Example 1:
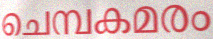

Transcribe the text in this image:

ചെമ്പകമരം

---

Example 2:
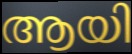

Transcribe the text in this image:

ആയി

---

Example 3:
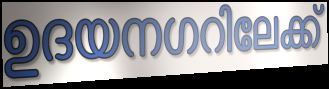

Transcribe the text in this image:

ഉദയനഗറിലേക്ക്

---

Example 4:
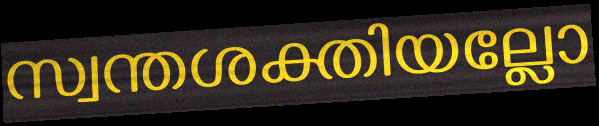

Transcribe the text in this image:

സ്വന്തശക്തിയല്ലോ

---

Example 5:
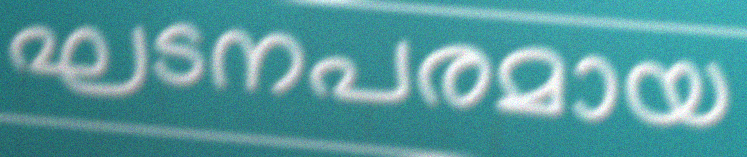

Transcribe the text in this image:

ഘടനപരമായ